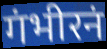
गंभीरनं